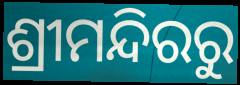
ଶ୍ରୀମନ୍ଦିରରୁ